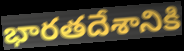
భారతదేశానికి